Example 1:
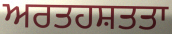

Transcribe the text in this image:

ਅਰਤਹਸ਼ਤਤਾ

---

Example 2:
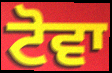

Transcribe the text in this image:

ਟੋਵਾ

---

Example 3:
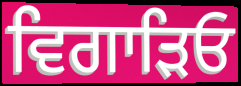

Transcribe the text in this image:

ਵਿਗਾੜਿਓ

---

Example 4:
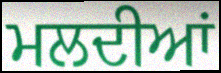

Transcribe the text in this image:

ਮਲਦੀਆਂ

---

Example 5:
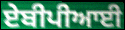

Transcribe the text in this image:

ਏਬੀਪੀਆਈ